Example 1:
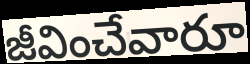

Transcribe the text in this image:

జీవించేవారూ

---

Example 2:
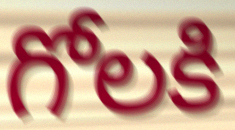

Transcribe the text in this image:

గోలకి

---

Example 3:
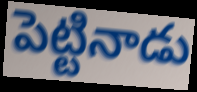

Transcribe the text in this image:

పెట్టినాడు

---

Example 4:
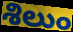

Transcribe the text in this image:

శిలుం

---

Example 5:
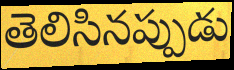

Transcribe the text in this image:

తెలిసినప్పుడు